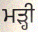
ਮੜ੍ਹੀ